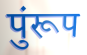
पुंरूप